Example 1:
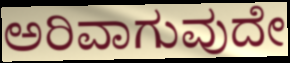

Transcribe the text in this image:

ಅರಿವಾಗುವುದೇ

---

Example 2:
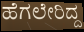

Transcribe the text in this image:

ಹೆಗಲೇರಿದ್ದ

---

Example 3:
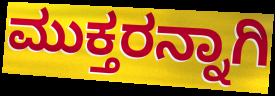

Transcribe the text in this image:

ಮುಕ್ತರನ್ನಾಗಿ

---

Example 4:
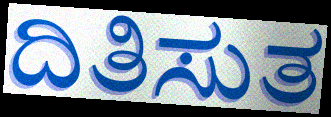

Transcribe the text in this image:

ದಿತಿಸುತ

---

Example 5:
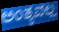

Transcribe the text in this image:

ಅಂತ್ಯವಲ್ಲ